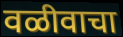
वळीवाचा